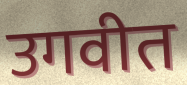
उगवीत